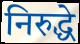
निरुद्धे